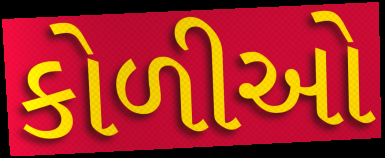
કોળીઓ